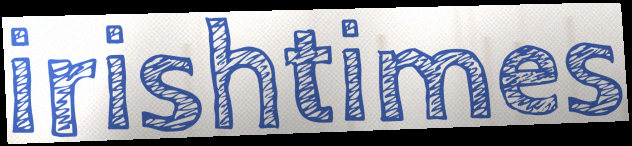
irishtimes